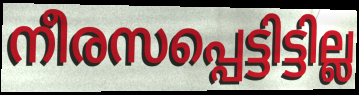
നീരസപ്പെട്ടിട്ടില്ല